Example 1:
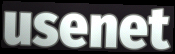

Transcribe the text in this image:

usenet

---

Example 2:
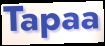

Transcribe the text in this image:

Tapaa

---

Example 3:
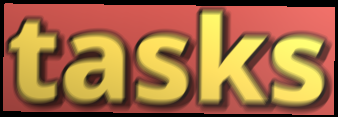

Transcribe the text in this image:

tasks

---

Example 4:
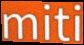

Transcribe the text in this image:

miti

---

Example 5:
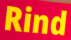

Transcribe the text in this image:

Rind